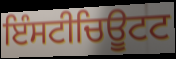
ਇੰਸਟੀਚਿਊਟਟ